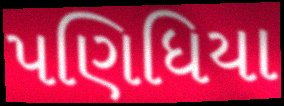
પણિધિયા